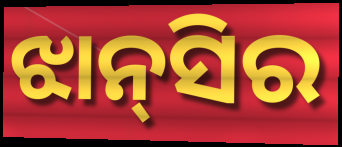
ଝାନ୍‌ସିର